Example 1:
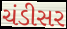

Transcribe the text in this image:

ચંડીસર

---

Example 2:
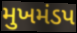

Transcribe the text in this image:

મુખમંડપ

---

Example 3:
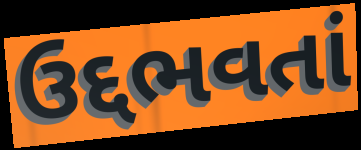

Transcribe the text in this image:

ઉદ્દભવતાં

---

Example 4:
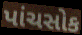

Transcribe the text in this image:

પાંચસોક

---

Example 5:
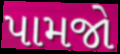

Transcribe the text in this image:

પામજો